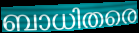
ബാധിതരെ